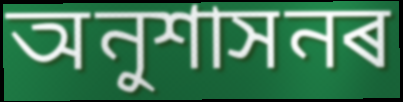
অনুশাসনৰ